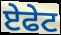
ਏਫੇਟ